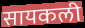
सायकली